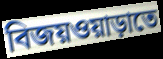
বিজয়ওয়াড়াতে